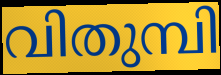
വിതുമ്പി